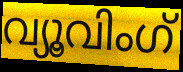
വ്യൂവിംഗ്